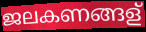
ജലകണങ്ങള്